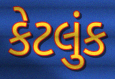
કેટલુંક